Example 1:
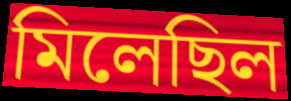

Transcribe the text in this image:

মিলেছিল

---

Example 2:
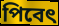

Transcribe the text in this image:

পিবেৎ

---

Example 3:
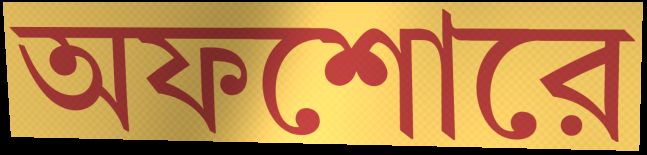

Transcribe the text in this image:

অফশোরে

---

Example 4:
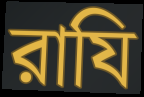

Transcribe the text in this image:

রাযি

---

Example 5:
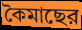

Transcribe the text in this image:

কৈমাছের